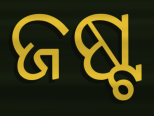
ଜଷ୍ଟ